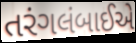
તરંગલંબાઈએ